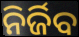
ନିର୍ଜିବ